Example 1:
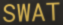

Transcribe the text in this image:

SWAT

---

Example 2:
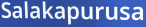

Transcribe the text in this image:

Salakapurusa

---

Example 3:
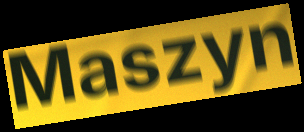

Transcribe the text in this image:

Maszyn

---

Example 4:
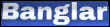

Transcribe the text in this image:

Banglar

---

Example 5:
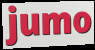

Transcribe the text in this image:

jumo